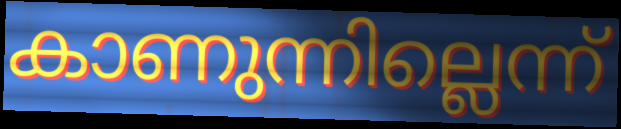
കാണുന്നില്ലെന്ന്